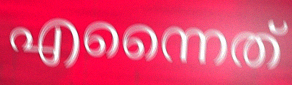
എന്നൈത്